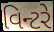
વિન્ટરે